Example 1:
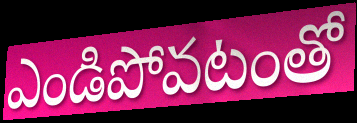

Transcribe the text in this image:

ఎండిపోవటంతో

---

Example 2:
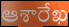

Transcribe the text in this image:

ఆశారేఖ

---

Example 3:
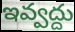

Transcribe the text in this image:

ఇవ్వద్దు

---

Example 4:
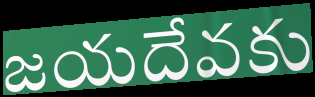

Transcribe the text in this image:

జయదేవకు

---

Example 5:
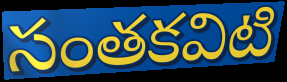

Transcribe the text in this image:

సంతకవిటి